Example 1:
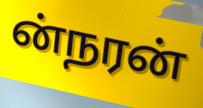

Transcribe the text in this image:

ன்நரன்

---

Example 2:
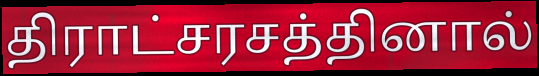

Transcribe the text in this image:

திராட்சரசத்தினால்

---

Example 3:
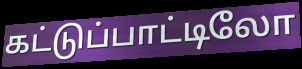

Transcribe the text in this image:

கட்டுப்பாட்டிலோ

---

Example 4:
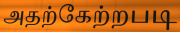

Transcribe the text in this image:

அதற்கேற்றபடி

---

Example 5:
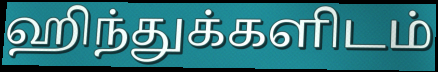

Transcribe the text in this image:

ஹிந்துக்களிடம்